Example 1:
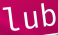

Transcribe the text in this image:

lub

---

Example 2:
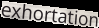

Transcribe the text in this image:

exhortation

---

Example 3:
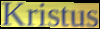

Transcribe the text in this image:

Kristus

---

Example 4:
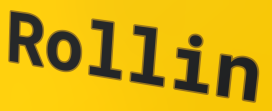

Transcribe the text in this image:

Rollin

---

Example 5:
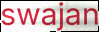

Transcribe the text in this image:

swajan